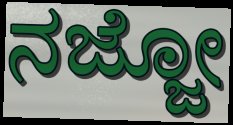
ನಜ್ಜೋ